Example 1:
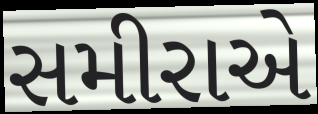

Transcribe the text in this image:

સમીરાએ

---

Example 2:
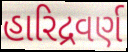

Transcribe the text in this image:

હારિદ્રવર્ણ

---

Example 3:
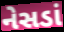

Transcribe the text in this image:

નેસડાં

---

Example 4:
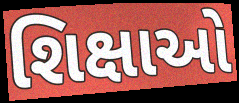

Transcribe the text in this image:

શિક્ષાઓ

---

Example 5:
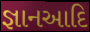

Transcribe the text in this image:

જ્ઞાનઆદિ